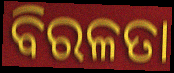
ବିରଳତା